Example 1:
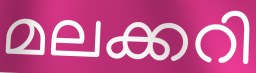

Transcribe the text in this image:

മലക്കറി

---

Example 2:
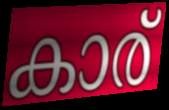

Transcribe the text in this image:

കാര്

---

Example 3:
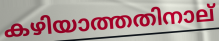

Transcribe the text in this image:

കഴിയാത്തതിനാല്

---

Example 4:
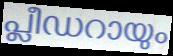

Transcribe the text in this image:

പ്ലീഡറായും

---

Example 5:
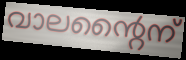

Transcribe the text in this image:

വാലന്റൈന്